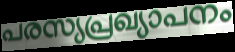
പരസ്യപ്രഖ്യാപനം